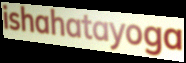
ishahatayoga